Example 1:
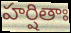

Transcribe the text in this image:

హర్షితాః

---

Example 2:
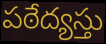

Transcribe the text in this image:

పఠేద్యస్తు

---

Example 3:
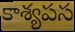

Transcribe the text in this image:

కాశ్యపస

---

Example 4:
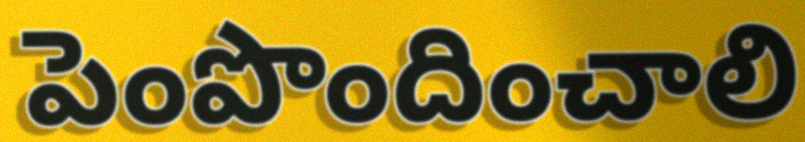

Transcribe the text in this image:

పెంపొందించాలి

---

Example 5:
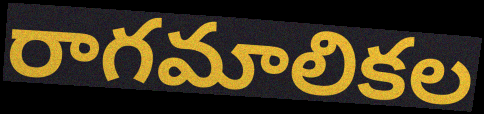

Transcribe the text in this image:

రాగమాలికల